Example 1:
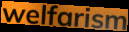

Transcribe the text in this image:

welfarism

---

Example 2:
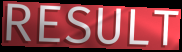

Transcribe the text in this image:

RESULT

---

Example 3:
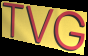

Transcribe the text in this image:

TVG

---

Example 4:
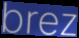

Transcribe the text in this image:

brez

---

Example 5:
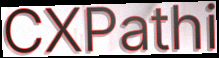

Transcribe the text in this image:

CXPathi